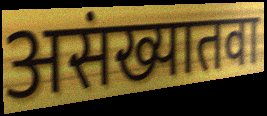
असंख्यातवा